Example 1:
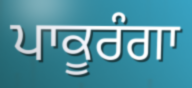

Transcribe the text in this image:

ਪਾਕੂਰੰਗਾ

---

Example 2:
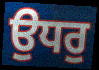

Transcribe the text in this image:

ਉਧਰੁ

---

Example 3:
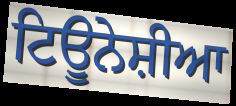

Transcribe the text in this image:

ਟਿਊਨੇਸ਼ੀਆ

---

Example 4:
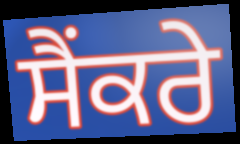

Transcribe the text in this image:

ਸੈਂਕਰੇ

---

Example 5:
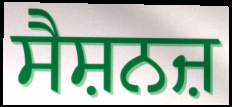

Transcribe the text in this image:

ਸੈਸ਼ਨਜ਼